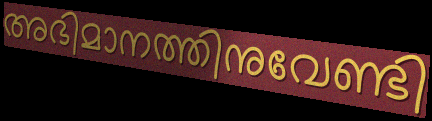
അഭിമാനത്തിനുവേണ്ടി